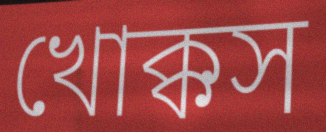
খোক্কস